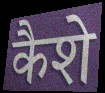
कैशे